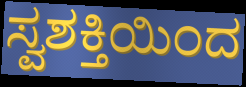
ಸ್ವಶಕ್ತಿಯಿಂದ